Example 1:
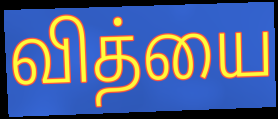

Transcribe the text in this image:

வித்யை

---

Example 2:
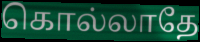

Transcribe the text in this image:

கொல்லாதே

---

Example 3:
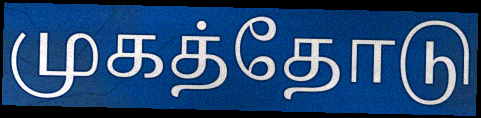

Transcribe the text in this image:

முகத்தோடு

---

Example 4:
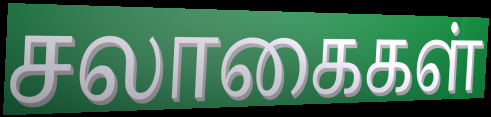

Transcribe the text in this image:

சலாகைகள்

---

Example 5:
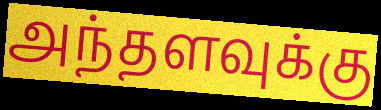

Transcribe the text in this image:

அந்தளவுக்கு